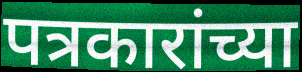
पत्रकारांच्या